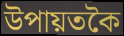
উপায়তকৈ